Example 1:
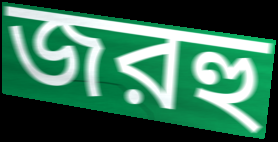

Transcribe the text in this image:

জরহু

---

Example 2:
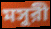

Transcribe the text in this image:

মসুরী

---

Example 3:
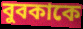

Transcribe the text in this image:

বুবকাকে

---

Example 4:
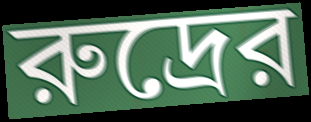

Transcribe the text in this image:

রুদ্রের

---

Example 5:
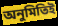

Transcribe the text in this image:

অনুমিতিই